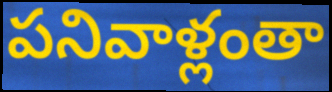
పనివాళ్లంతా